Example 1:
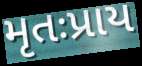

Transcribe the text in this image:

મૃતઃપ્રાય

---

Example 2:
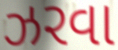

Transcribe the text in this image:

ઝરવા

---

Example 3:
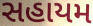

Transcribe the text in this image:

સહાયમ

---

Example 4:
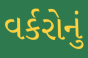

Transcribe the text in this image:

વર્કરોનું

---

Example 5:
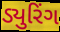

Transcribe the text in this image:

ડ્યુરિંગ